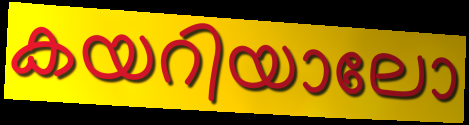
കയറിയാലോ